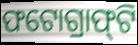
ଫଟୋଗ୍ରାଫ୍‌ଟି